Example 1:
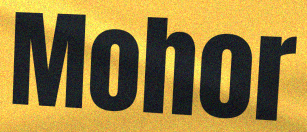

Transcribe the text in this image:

Mohor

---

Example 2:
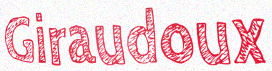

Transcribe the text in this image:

Giraudoux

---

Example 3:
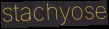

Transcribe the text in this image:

stachyose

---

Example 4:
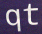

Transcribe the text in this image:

qt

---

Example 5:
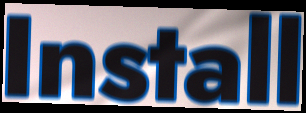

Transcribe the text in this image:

Install